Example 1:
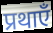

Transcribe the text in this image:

प्रथाएँ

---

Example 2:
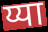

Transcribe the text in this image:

य्या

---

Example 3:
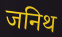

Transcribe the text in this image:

जनिथ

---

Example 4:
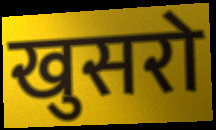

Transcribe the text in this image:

खुसरो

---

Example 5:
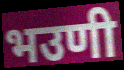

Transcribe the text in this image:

भउणी